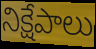
నిక్షేపాలు